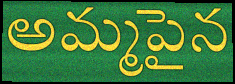
అమ్మపైన